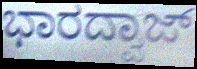
ಭಾರದ್ವಾಜ್